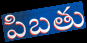
పిబతు